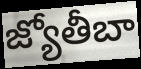
జ్యోతీబా